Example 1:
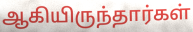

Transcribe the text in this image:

ஆகியிருந்தார்கள்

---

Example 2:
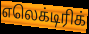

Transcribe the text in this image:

எலெக்டிரிக்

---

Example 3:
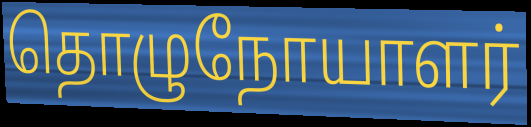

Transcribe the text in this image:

தொழுநோயாளர்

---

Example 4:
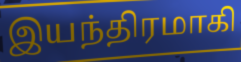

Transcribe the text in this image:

இயந்திரமாகி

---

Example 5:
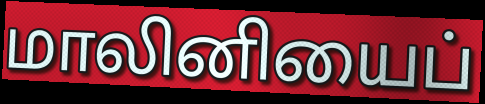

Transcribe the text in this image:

மாலினியைப்